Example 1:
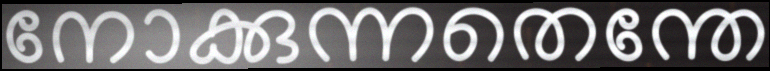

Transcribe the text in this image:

നോക്കുന്നതെന്തേ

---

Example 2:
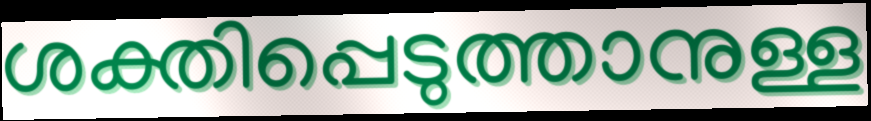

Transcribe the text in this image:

ശക്തിപ്പെടുത്താനുള്ള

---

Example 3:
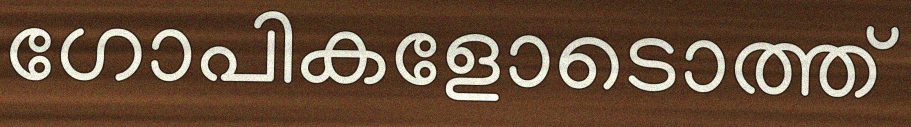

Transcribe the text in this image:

ഗോപികളോടൊത്ത്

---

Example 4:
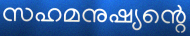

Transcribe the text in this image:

സഹമനുഷ്യന്റെ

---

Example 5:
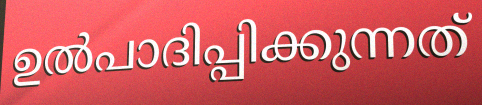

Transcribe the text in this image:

ഉൽപാദിപ്പിക്കുന്നത്